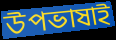
উপভাষাই